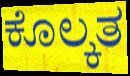
ಕೊಲ್ಕತ